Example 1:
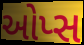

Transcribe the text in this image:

ઓપ્સ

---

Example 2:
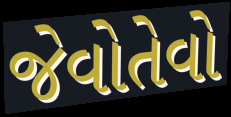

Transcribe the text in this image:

જેવોતેવો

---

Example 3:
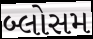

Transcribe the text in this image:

બ્લોસમ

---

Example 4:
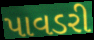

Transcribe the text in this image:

પાવડરી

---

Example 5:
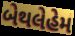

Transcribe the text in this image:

બેથલેહેમ